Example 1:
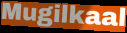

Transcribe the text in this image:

Mugilkaal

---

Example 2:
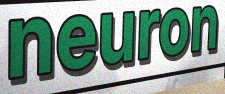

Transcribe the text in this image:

neuron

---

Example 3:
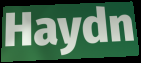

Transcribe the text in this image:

Haydn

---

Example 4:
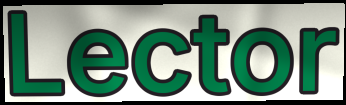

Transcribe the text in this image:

Lector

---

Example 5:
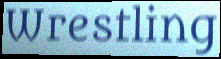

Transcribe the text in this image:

Wrestling